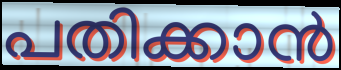
പതിക്കാൻ